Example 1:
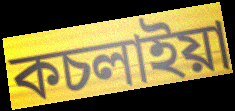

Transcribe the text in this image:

কচলাইয়া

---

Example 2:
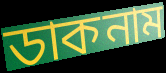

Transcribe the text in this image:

ডাকনাম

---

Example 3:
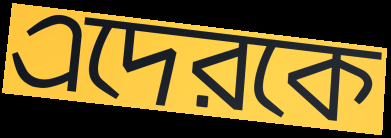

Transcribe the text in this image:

এদেরকে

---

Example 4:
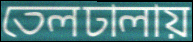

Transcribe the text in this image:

তেলঢালায়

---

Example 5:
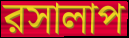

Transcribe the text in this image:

রসালাপ